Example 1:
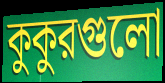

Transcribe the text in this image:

কুকুরগুলো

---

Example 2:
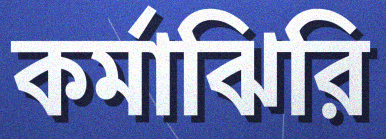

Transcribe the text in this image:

কর্মাঝিরি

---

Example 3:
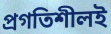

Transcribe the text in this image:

প্রগতিশীলই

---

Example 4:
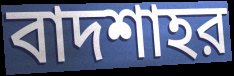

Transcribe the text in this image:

বাদশাহর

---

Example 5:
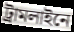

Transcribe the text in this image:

ট্রামলাইনে